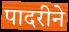
पादरीने